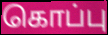
கொப்பு